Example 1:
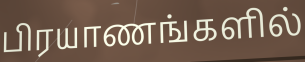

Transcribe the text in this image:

பிரயாணங்களில்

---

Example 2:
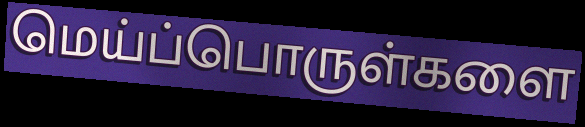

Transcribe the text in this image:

மெய்ப்பொருள்களை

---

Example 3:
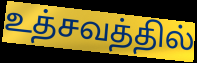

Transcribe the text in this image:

உத்சவத்தில்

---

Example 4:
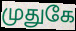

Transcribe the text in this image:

முதுகே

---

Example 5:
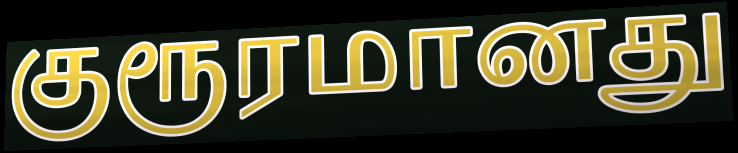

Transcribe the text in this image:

குரூரமானது